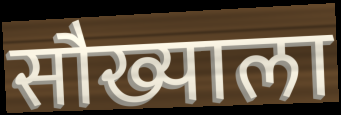
सौख्याला